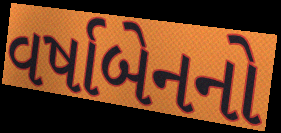
વર્ષાબેનનો